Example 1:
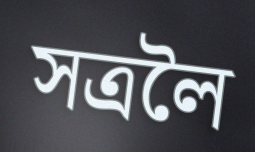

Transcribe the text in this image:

সত্ৰলৈ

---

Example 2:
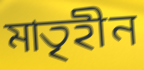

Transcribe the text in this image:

মাতৃহীন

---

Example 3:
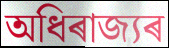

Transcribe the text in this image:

অধিৰাজ্যৰ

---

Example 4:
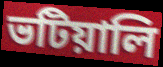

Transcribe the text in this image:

ভটিয়ালি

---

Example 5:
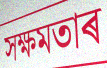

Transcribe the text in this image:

সক্ষমতাৰ